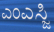
ಎಂಎಸ್ಜಿ